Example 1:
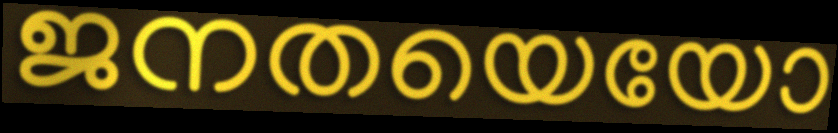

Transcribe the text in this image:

ജനതയെയോ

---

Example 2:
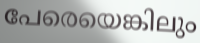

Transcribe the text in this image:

പേരെയെങ്കിലും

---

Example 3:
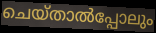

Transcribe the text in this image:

ചെയ്താൽപ്പോലും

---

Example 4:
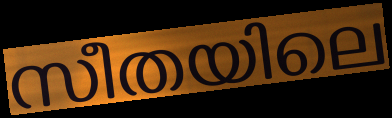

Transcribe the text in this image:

സീതയിലെ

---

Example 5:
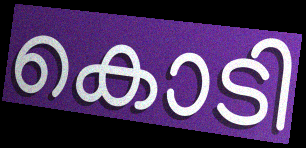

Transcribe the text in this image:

കൊടി